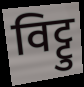
विट्टु